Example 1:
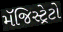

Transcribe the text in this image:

મૅજિસ્ટ્રેટો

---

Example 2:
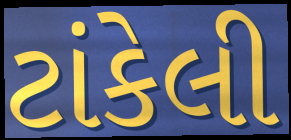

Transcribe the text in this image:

ટાંકેલી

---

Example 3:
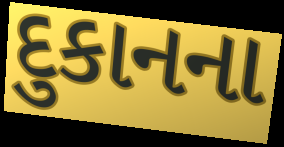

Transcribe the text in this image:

દુકાનના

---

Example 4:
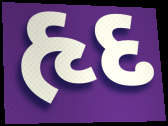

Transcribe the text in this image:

હૃદ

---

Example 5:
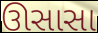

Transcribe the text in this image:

ઊસાસા